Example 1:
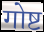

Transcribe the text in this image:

गोष्ट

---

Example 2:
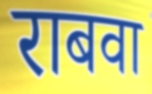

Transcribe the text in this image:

राबवा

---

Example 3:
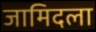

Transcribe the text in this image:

जामिदला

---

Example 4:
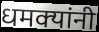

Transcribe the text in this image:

धमक्यांनी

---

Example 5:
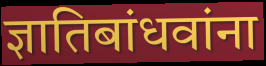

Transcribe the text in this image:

ज्ञातिबांधवांना